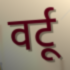
वर्टू